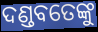
ଦଣ୍ଡବତେଙ୍କୁ